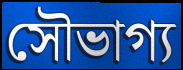
সৌভাগ্য